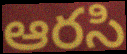
ఆరసి